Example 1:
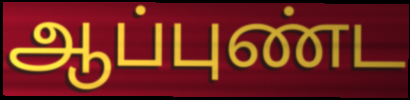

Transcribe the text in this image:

ஆப்புண்ட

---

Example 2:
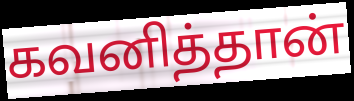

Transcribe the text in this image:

கவனித்தான்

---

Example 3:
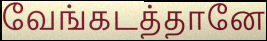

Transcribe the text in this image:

வேங்கடத்தானே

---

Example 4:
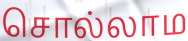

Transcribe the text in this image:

சொல்லாம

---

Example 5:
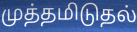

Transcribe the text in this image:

முத்தமிடுதல்